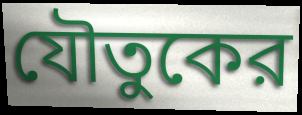
যৌতুকের